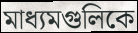
মাধ্যমগুলিকে